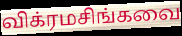
விக்ரமசிங்கவை